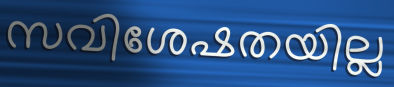
സവിശേഷതയില്ല